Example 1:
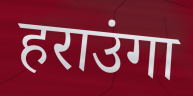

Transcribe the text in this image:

हराउंगा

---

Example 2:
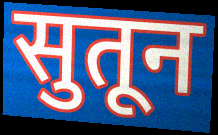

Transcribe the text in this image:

सुतून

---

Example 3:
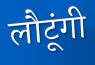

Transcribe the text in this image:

लौटूंगी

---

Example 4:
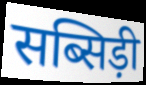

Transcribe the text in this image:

सब्सिड़ी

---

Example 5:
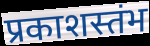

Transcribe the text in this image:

प्रकाशस्तंभ